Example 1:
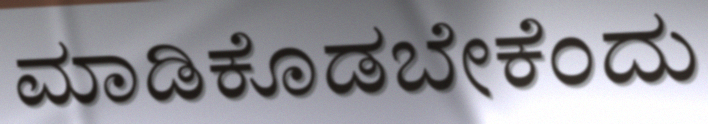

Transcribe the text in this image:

ಮಾಡಿಕೊಡಬೇಕೆಂದು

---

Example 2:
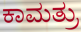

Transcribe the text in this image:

ಕಾಮತ್ರು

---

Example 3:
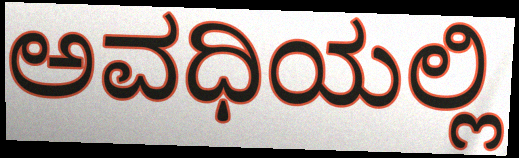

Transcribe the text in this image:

ಅವಧಿಯಲ್ಲಿ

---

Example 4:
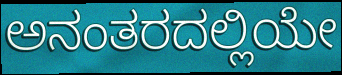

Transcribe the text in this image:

ಅನಂತರದಲ್ಲಿಯೇ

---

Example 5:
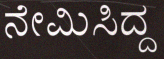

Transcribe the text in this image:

ನೇಮಿಸಿದ್ದ